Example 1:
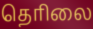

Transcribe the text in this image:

தெரிலை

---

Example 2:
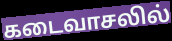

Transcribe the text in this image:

கடைவாசலில்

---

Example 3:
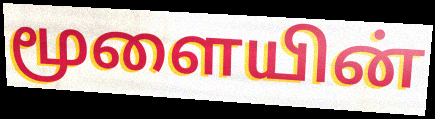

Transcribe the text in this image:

மூளையின்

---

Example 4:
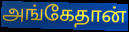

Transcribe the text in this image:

அங்கேதான்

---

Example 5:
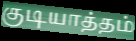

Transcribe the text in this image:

குடியாத்தம்